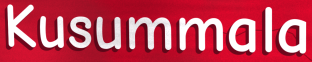
Kusummala